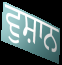
ਵੁਸ਼ਾਨ